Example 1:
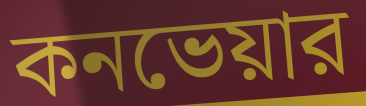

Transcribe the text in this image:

কনভেয়ার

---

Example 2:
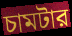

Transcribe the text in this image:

চামটার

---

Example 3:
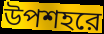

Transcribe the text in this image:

উপশহরে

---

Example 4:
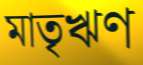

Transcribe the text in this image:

মাতৃঋণ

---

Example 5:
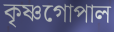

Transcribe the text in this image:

কৃষ্ণগোপাল